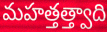
మహత్తత్త్వాది